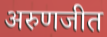
अरुणजीत